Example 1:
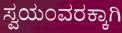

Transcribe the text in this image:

ಸ್ವಯಂವರಕ್ಕಾಗಿ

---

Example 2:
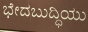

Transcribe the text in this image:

ಭೇದಬುದ್ಧಿಯು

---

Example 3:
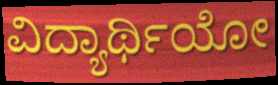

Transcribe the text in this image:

ವಿದ್ಯಾರ್ಥಿಯೋ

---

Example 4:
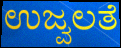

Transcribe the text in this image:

ಉಜ್ವಲತೆ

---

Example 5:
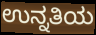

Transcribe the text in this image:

ಉನ್ನತಿಯ